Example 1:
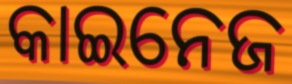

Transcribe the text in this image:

କାଇନେଜ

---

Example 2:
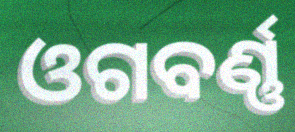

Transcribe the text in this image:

ଓଗବର୍ଣ୍ଣ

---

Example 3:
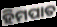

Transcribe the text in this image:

ହିମପାତ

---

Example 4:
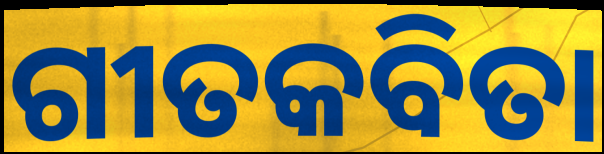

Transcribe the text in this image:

ଗୀତକବିତା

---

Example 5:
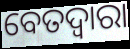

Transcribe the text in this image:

ବେତଦ୍ୱାରା